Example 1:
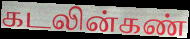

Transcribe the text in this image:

கடலின்கண்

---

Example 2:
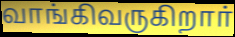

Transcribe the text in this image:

வாங்கிவருகிறார்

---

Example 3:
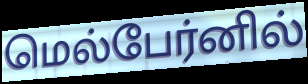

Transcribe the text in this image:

மெல்பேர்னில்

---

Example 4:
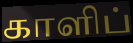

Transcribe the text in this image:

காளிப்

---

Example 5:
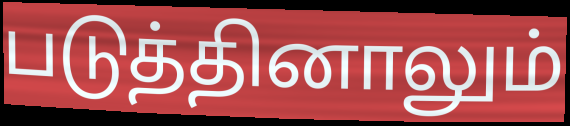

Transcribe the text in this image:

படுத்தினாலும்